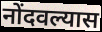
नोंदवल्यास